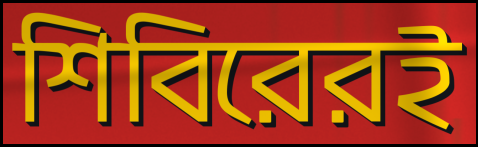
শিবিরেরই